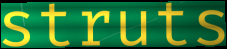
struts